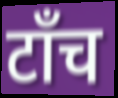
टाँच